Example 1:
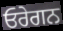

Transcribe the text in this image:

ਓਰੇਗਨ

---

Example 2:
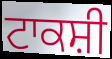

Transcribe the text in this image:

ਟਾਕਸ਼ੀ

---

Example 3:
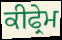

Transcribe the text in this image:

ਕੀਫ੍ਰੇਮ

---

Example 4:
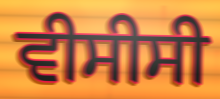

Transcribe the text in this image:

ਵੀਸੀਸੀ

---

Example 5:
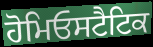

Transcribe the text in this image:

ਹੋਮਿਓਸਟੈਟਿਕ